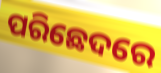
ପରିଛେଦରେ